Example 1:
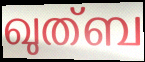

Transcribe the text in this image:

ഖുത്ബ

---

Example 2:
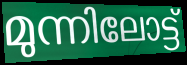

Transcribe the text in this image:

മുന്നിലോട്ട്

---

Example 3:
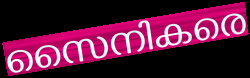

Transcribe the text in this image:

സൈനികരെ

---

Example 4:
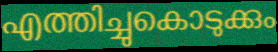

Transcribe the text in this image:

എത്തിച്ചുകൊടുക്കും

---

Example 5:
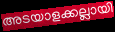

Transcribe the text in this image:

അടയാളക്കല്ലായി